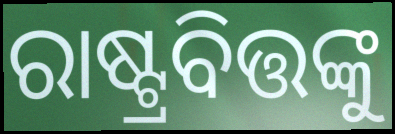
ରାଷ୍ଟ୍ରବିତ୍ତଙ୍କୁ